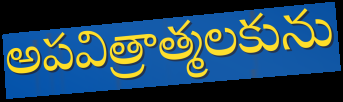
అపవిత్రాత్మలకును